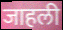
जाहली